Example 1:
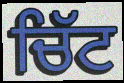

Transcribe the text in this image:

ਚਿੱਟ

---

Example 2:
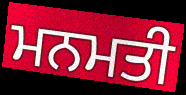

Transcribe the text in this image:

ਮਨਮਤੀ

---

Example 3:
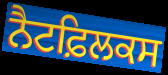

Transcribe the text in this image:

ਨੈਟਫ਼ਿਲਕਸ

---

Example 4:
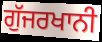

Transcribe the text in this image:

ਗੁੱਜਰਖਾਨੀ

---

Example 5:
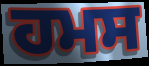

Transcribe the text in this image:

ਹਮਸ